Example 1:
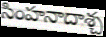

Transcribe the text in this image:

సింహనాదాశ్చ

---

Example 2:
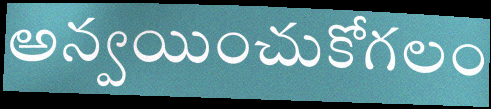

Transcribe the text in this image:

అన్వయించుకోగలం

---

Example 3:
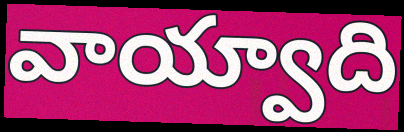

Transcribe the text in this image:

వాయ్వాది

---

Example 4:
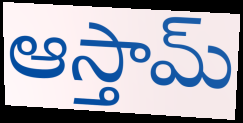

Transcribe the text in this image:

ఆస్తామ్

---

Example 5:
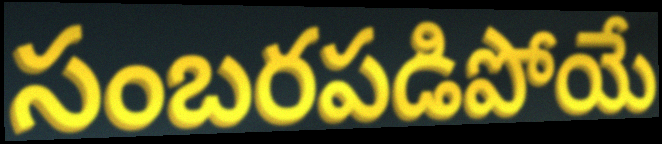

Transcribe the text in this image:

సంబరపడిపోయే